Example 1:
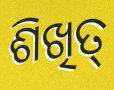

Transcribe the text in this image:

ଶିଖିତ୍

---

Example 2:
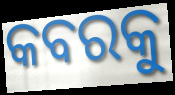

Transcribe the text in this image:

କବରକୁ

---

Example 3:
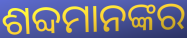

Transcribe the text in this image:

ଶବ୍ଦମାନଙ୍କର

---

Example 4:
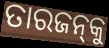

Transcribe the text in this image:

ତାରଜନ୍‌କୁ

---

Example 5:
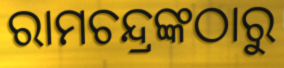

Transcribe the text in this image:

ରାମଚନ୍ଦ୍ରଙ୍କଠାରୁ